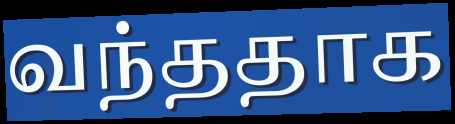
வந்ததாக